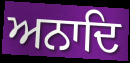
ਅਨਾਦਿ